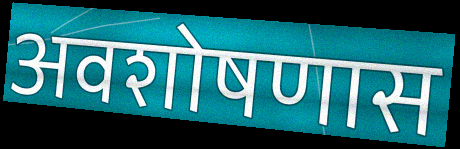
अवशोषणास